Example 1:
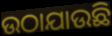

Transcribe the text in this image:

ଉଠାଯାଉଛି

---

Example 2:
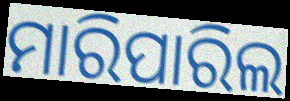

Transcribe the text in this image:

ମାରିପାରିଲ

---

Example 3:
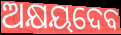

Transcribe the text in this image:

ଅକ୍ଷୟଦେବ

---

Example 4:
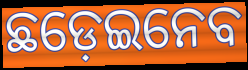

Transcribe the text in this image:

ଛଡ଼େଇନେବ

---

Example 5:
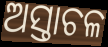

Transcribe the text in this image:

ଅସ୍ତାଚଳ